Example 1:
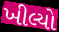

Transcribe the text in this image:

ખીલ્યો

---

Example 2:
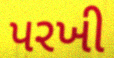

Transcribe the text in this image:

પરખી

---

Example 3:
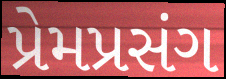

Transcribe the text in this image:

પ્રેમપ્રસંગ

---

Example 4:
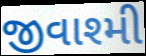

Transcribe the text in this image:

જીવાશ્મી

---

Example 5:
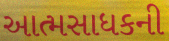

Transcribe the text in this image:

આત્મસાધકની